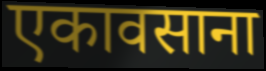
एकावसाना